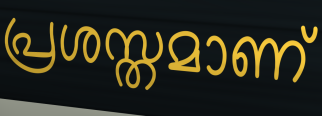
പ്രശസ്തമാണ്